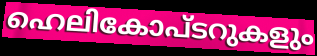
ഹെലികോപ്ടറുകളും